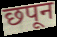
छपून